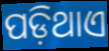
ପଡ଼ିଥାଏ